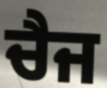
ਚੈਜ